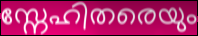
സ്നേഹിതരെയും